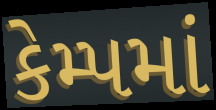
કેમ્પમાં